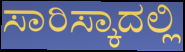
ಸಾರಿಸ್ಕಾದಲ್ಲಿ